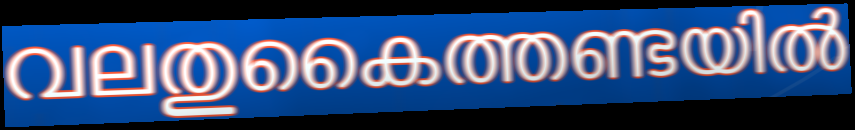
വലതുകൈത്തണ്ടയിൽ